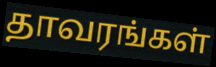
தாவரங்கள்